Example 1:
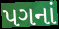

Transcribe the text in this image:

પગનાં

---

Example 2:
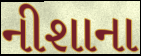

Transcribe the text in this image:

નીશાના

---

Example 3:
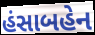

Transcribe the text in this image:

હંસાબહેન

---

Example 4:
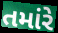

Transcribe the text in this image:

તમાંરે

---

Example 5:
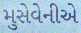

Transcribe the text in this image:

મુસેવેનીએ